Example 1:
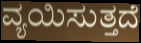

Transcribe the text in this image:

ವ್ಯಯಿಸುತ್ತದೆ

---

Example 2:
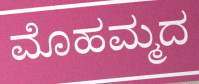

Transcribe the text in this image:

ಮೊಹಮ್ಮದ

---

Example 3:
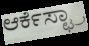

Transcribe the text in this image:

ಆರ್ಕೆಸ್ಟ್ರಾ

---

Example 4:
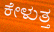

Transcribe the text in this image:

ಕೇಳುತ್ತ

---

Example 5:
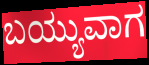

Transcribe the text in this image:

ಬಯ್ಯುವಾಗ